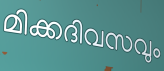
മിക്കദിവസവും